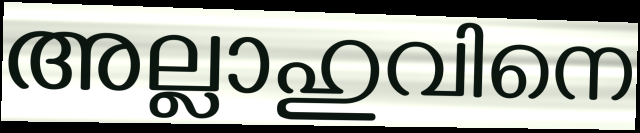
അല്ലാഹുവിനെ